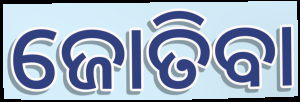
ଜୋତିବା